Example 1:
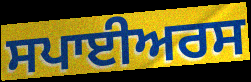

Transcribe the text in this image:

ਸਪਾਈਅਰਸ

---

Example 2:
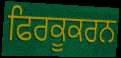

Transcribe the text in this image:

ਫਿਰਕੂਕਰਨ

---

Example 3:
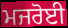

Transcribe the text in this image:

ਮਜਰੋਈ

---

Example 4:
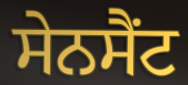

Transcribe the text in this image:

ਸੇਨਸੈਂਟ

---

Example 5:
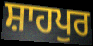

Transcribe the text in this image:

ਸ਼ਾਹਪੁਰ